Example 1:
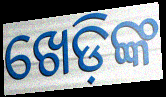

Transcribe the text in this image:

ଖେଡ଼ିଙ୍କ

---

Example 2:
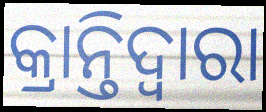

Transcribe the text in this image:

କ୍ରାନ୍ତିଦ୍ୱାରା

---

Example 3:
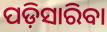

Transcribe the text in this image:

ପଡ଼ିସାରିବା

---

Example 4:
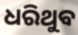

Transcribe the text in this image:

ଧରିଥୁବ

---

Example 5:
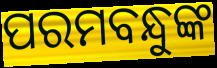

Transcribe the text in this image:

ପରମବନ୍ଧୁଙ୍କ